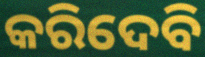
କରିଦେବି